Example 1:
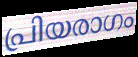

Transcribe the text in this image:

പ്രിയരാഗം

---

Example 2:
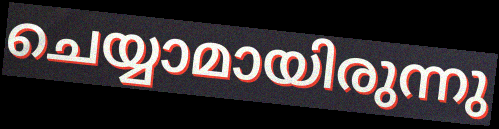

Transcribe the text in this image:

ചെയ്യാമായിരുന്നു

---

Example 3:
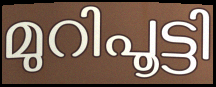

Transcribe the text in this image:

മുറിപൂട്ടി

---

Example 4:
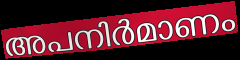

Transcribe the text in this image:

അപനിർമാണം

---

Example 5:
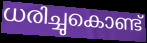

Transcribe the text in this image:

ധരിച്ചുകൊണ്ട്